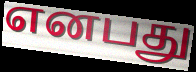
எனபது